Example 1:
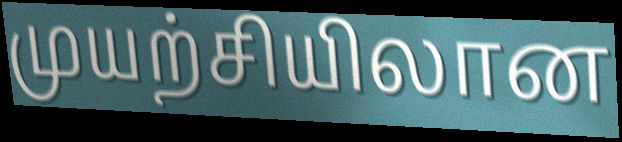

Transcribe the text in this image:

முயற்சியிலான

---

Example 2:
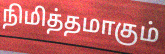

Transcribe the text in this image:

நிமித்தமாகும்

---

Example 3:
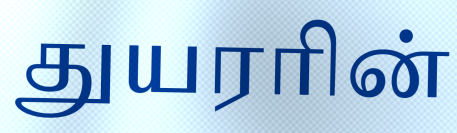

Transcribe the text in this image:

துயரரின்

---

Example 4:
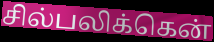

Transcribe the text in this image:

சில்பலிக்கென்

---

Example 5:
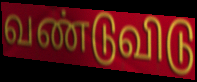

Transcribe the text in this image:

வண்டுவிடு